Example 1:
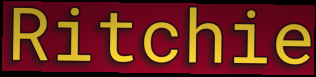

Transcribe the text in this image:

Ritchie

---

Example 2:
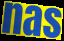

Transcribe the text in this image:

nas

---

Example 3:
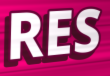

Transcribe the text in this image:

RES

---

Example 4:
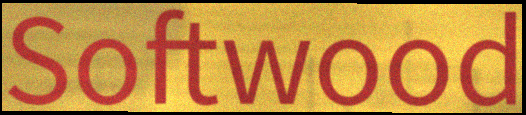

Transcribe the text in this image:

Softwood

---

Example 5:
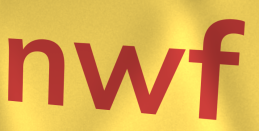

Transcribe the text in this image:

nwf